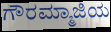
ಗೌರಮ್ಮಾಜಿಯ